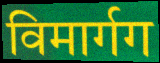
विमार्गग